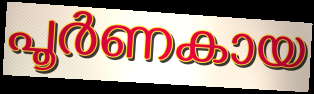
പൂർണകായ